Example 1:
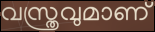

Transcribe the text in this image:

വസ്ത്രവുമാണ്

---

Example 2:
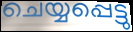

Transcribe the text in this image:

ചെയ്യപ്പെട്ടു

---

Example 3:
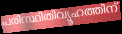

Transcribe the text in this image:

പരിസ്ഥിതിവ്യൂഹത്തിന്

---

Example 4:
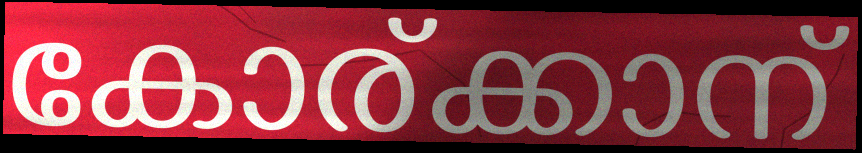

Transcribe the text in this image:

കോര്ക്കാന്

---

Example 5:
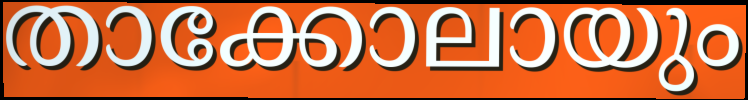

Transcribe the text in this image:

താക്കോലായും